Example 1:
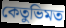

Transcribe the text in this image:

কেতুভিমত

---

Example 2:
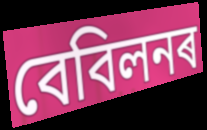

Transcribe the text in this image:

বেবিলনৰ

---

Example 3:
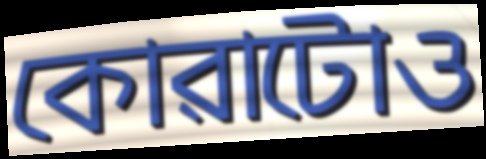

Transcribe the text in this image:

কোৱাটোও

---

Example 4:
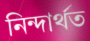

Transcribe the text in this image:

নিন্দাৰ্থত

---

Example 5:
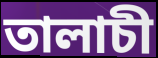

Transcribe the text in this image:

তালাচী